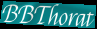
BBThorat